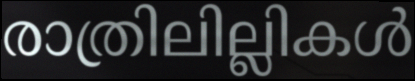
രാത്രിലില്ലികൾ